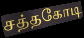
சத்தகோடி